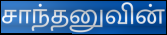
சாந்தனுவின்